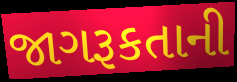
જાગરૂકતાની